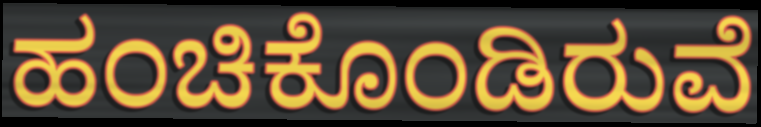
ಹಂಚಿಕೊಂಡಿರುವೆ